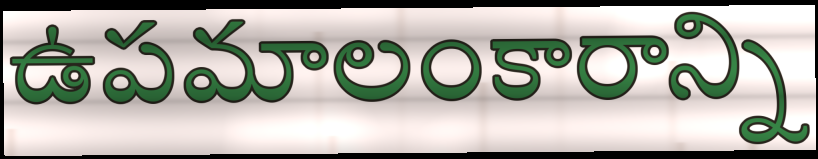
ఉపమాలంకారాన్ని